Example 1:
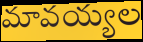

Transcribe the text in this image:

మావయ్యల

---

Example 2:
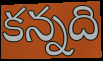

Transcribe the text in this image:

కన్నది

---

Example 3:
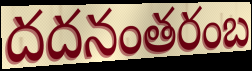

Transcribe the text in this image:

దదనంతరంబ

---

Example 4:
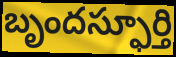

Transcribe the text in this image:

బృందస్ఫూర్తి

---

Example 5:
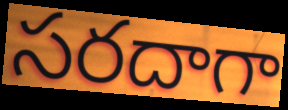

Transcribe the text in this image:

సరదాగా